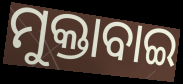
ମୁକ୍ତାବାଇ